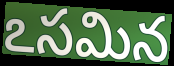
ఽసమిన